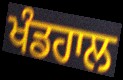
ਖੰਡਹਾਲ